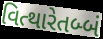
વિત્થારેતબ્બં